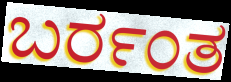
ಬರ್ರಂತ